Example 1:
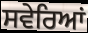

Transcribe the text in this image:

ਸਵੇਰਿਆਂ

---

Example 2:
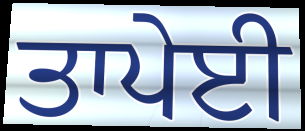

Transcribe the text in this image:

ਤਾਪੇਈ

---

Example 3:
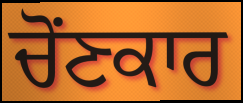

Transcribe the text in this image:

ਚੋਂਣਕਾਰ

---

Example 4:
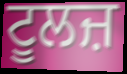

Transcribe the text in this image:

ਟੂਲਜ਼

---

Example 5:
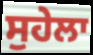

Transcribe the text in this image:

ਸੁਹੇਲਾ